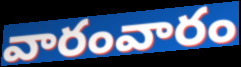
వారంవారం